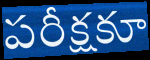
పరీక్షకూ